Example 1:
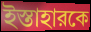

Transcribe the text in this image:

ইস্তাহারকে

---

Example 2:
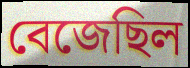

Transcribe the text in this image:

বেজেছিল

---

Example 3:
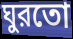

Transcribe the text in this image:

ঘুরতো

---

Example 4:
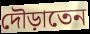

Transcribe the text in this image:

দৌড়াতেন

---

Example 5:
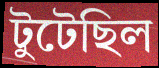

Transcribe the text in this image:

টুটেছিল